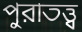
পুরাতত্ত্ব